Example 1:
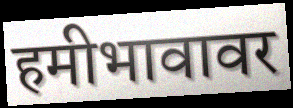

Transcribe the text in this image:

हमीभावावर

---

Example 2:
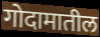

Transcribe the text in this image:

गोदामातील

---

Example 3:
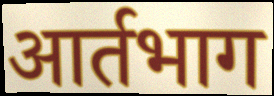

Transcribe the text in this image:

आर्तभाग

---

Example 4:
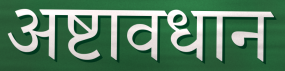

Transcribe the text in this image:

अष्टावधान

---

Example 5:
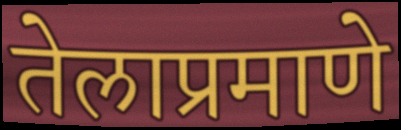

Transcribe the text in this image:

तेलाप्रमाणे